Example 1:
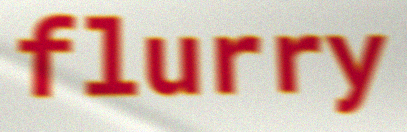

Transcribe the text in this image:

flurry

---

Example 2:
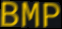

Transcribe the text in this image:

BMP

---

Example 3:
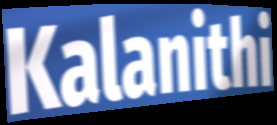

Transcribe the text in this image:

Kalanithi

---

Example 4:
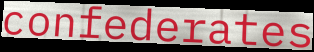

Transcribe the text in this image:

confederates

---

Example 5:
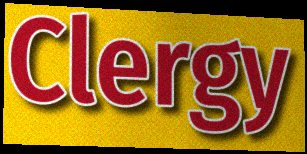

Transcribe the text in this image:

Clergy